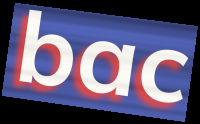
bac